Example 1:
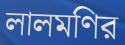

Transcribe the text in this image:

লালমণির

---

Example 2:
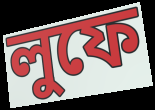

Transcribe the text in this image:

লুফে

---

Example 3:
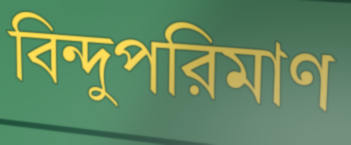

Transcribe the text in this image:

বিন্দুপরিমাণ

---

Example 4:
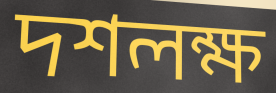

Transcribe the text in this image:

দশলক্ষ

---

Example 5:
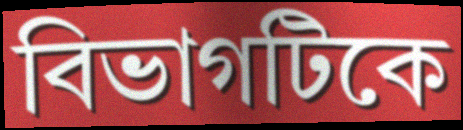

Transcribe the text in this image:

বিভাগটিকে